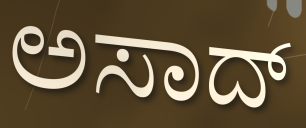
ಅಸಾದ್